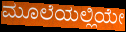
ಮೂಲೆಯಲ್ಲಿಯೇ